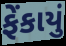
ફેંકાયું